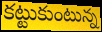
కట్టుకుంటున్న